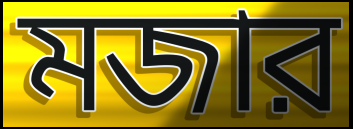
মজার